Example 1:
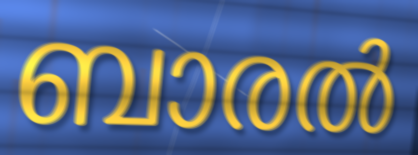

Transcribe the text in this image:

ബാരൽ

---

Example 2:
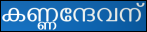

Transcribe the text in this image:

കണ്ണന്ദേവന്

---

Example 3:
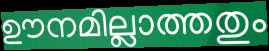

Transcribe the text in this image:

ഊനമില്ലാത്തതും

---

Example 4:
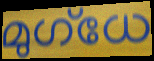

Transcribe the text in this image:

മുഗ്ധേ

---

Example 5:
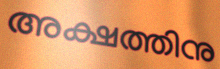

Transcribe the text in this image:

അക്ഷത്തിനു